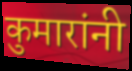
कुमारांनी